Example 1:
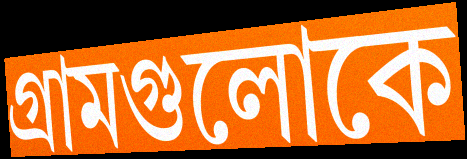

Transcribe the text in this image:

গ্রামগুলোকে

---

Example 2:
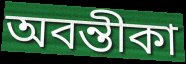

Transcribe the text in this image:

অবন্তীকা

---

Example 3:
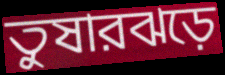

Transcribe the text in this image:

তুষারঝড়ে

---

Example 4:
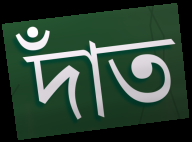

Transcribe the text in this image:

দাঁত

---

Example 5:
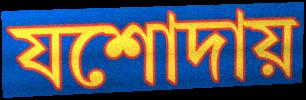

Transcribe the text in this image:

যশোদায়